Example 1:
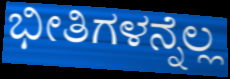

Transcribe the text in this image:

ಭೀತಿಗಳನ್ನೆಲ್ಲ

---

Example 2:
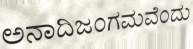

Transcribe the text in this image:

ಅನಾದಿಜಂಗಮವೆಂದು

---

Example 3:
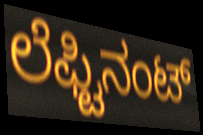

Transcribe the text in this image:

ಲೆಫ್ಟಿನಂಟ್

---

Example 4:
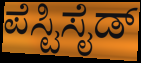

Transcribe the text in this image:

ಪೆಸ್ಟಿಸೈಡ್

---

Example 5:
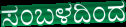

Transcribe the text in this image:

ಸಂಬಳದಿಂದ